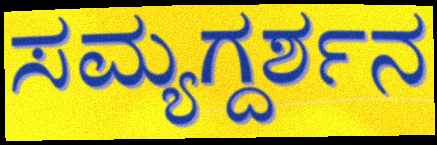
ಸಮ್ಯಗ್ದರ್ಶನ